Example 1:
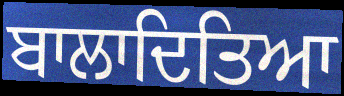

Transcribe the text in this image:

ਬਾਲਾਦਿਤਿਆ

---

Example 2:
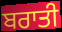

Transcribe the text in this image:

ਬਰਾਤੀ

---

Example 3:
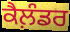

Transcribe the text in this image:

ਕੈਲ਼ੰਡਰ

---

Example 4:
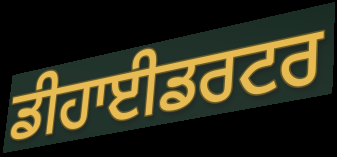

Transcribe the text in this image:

ਡੀਹਾਈਡਰਟਰ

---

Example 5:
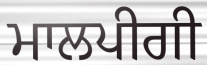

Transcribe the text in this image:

ਮਾਲਪੀਗੀ